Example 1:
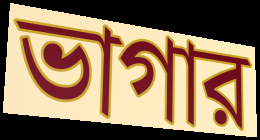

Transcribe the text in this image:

ভাগার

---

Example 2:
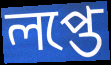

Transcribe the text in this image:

লপ্তে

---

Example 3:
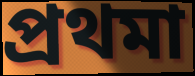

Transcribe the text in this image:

প্রথমা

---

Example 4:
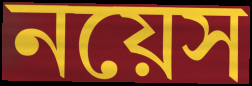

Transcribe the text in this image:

নয়েস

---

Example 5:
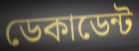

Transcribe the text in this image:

ডেকাডেন্ট